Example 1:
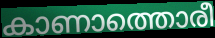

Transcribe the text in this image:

കാണാത്തൊരീ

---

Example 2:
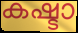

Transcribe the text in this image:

കഷ്ടാ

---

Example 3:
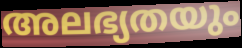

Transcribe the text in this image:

അലഭ്യതയും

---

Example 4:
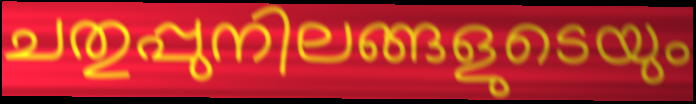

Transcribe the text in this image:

ചതുപ്പുനിലങ്ങളുടെയും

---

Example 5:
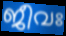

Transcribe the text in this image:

ജീവഃ